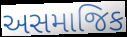
અસમાજિક